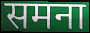
समना